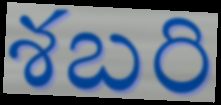
శబరి